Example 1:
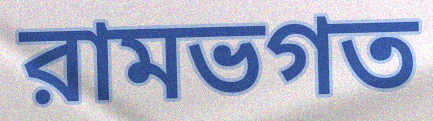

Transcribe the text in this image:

রামভগত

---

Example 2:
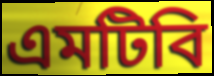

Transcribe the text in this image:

এমটিবি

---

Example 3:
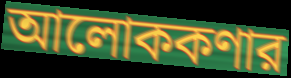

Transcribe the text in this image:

আলোককণার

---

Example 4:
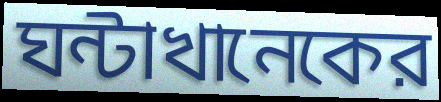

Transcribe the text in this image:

ঘন্টাখানেকের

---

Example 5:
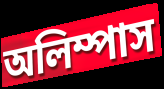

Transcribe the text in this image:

অলিম্পাস